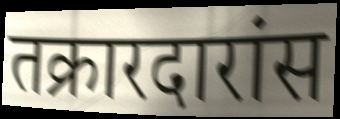
तक्रारदारांस